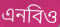
এনবিও